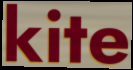
kite